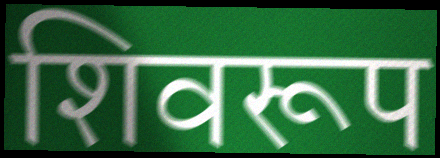
शिवरूप